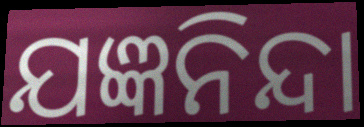
ଯଜ୍ଞନିନ୍ଦା